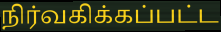
நிர்வகிக்கப்பட்ட